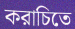
করাচিতে